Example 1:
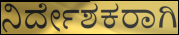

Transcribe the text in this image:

ನಿರ್ದೇಶಕರಾಗಿ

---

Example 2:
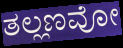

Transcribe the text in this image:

ತಲ್ಲಣವೋ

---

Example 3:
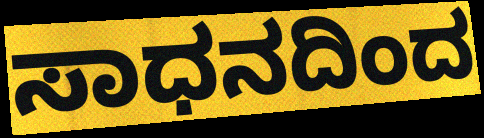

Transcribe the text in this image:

ಸಾಧನದಿಂದ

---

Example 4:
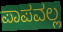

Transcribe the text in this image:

ಪಾಪವಲ್ಲ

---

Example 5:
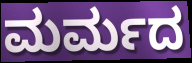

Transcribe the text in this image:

ಮರ್ಮದ